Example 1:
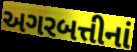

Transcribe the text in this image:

અગરબત્તીનાં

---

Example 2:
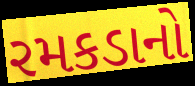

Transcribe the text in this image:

રમકડાનો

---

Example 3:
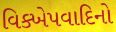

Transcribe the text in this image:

વિક્ખેપવાદિનો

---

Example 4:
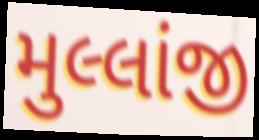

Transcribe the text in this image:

મુલ્લાંજી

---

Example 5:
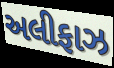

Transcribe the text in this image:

અલીફાઝ